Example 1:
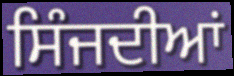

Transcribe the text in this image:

ਸਿੰਜਦੀਆਂ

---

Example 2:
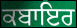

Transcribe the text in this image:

ਕਬਾਇਰ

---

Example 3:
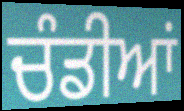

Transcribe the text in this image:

ਚੰਡੀਆਂ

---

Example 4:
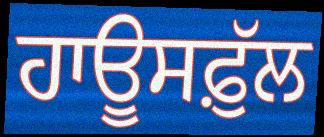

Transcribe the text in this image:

ਹਾਊਸਫ਼ੁੱਲ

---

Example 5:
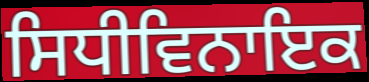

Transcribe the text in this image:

ਸਿਧੀਵਿਨਾਇਕ